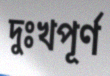
দুঃখপূর্ণ